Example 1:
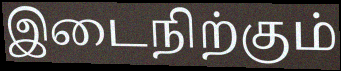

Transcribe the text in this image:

இடைநிற்கும்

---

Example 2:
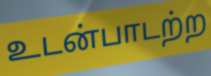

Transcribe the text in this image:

உடன்பாடற்ற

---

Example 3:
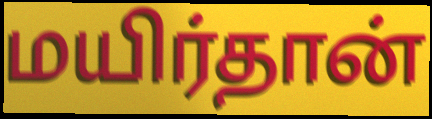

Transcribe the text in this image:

மயிர்தான்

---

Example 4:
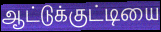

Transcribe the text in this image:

ஆட்டுக்குட்டியை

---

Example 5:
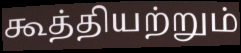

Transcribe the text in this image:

கூத்தியற்றும்